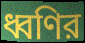
ধ্বণির